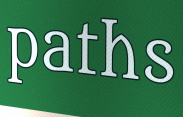
paths